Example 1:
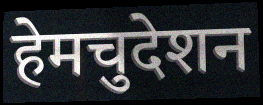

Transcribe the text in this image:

हेमचुदेशन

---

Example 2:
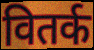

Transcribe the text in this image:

वितर्क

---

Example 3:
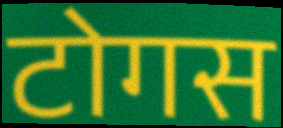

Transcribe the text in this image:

टोगस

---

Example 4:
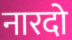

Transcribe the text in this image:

नारदो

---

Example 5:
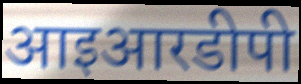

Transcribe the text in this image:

आइआरडीपी